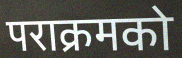
पराक्रमको